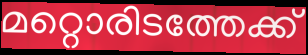
മറ്റൊരിടത്തേക്ക്